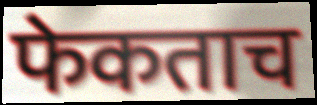
फेकताच